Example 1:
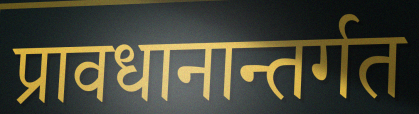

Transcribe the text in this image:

प्रावधानान्तर्गत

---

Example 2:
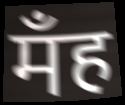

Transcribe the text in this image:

मँह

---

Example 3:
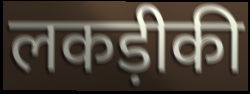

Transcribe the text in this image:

लकड़ीकी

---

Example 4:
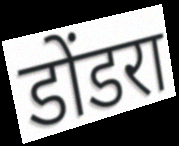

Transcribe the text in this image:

डोंडरा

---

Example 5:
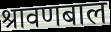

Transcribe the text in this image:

श्रावणबाल